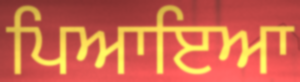
ਪਿਆਇਆ